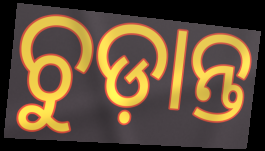
ଚୁଡ଼ାନ୍ତ